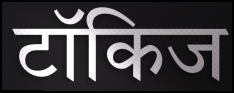
टॉकिज